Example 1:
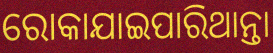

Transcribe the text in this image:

ରୋକାଯାଇପାରିଥାନ୍ତା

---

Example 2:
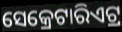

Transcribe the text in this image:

ସେକ୍ରେଟାରିଏଟ୍ର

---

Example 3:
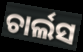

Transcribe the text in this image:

ଚାର୍ଲସ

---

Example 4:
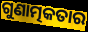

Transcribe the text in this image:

ଗୁଣାତ୍ମକତାର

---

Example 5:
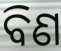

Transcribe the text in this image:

ବିଣ